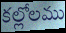
కల్లోలము